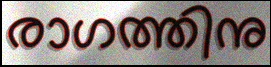
രാഗത്തിനു